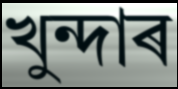
খুন্দাৰ